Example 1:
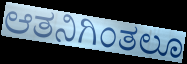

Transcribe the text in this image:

ಆತನಿಗಿಂತಲೂ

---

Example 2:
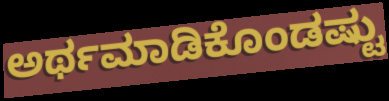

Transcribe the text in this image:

ಅರ್ಥಮಾಡಿಕೊಂಡಷ್ಟು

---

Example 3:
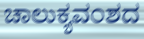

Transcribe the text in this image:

ಚಾಲುಕ್ಯವಂಶದ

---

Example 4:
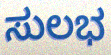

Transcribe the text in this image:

ಸುಲಭ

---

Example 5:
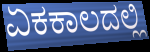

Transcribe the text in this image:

ಏಕಕಾಲದಲ್ಲಿ